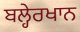
ਬਲ੍ਹੇਰਖਾਨ